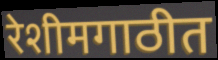
रेशीमगाठीत